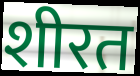
शीरत